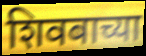
शिवबाच्या